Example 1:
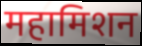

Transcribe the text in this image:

महामिशन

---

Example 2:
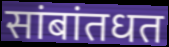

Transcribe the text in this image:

सांबांतधत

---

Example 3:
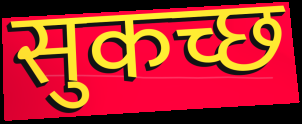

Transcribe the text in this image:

सुकच्छ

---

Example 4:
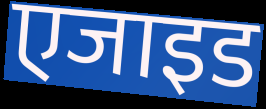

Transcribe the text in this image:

एजाइड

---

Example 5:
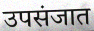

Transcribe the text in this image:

उपसंजात